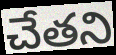
చేతని